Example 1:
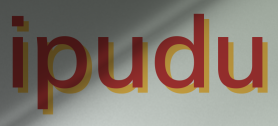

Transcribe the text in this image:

ipudu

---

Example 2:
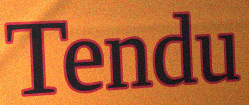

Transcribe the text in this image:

Tendu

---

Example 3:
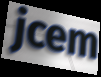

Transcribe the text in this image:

jcem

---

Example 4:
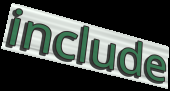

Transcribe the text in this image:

include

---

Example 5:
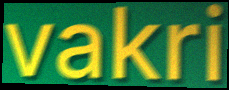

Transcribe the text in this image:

vakri